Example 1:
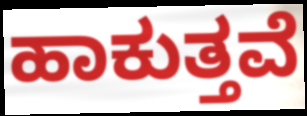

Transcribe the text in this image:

ಹಾಕುತ್ತವೆ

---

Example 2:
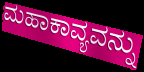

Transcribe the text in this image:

ಮಹಾಕಾವ್ಯವನ್ನು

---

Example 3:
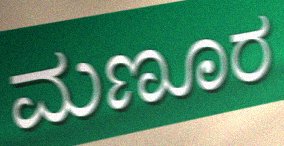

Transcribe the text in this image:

ಮಣೂರ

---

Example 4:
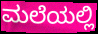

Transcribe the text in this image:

ಮಲೆಯಲ್ಲಿ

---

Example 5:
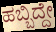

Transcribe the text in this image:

ಹಬ್ಬಿದ್ದೇ